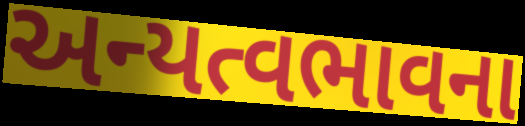
અન્યત્વભાવના